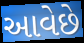
આવેછે